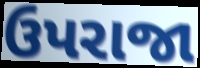
ઉપરાજા